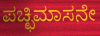
ಪಚ್ಛಿಮಾಸನೇ